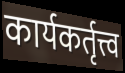
कार्यकर्तृत्त्व